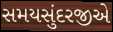
સમયસુંદરજીએ